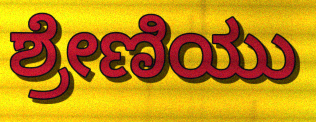
ಶ್ರೇಣಿಯು